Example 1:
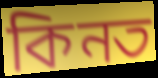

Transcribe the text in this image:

কিনত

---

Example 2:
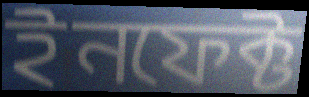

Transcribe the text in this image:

ইনফেক্ট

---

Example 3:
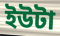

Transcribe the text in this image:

ইউটা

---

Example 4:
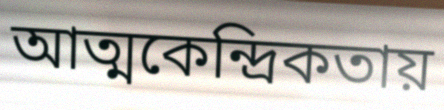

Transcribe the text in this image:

আত্মকেন্দ্রিকতায়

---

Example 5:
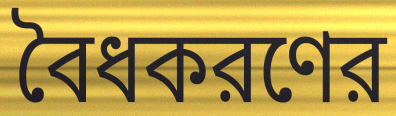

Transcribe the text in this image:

বৈধকরণের